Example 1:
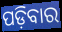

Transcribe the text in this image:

ପଡ଼ିବାର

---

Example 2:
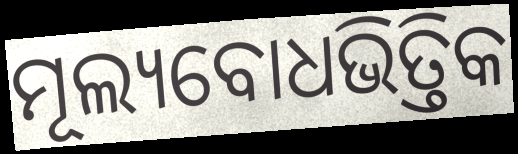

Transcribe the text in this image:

ମୂଲ୍ୟବୋଧଭିତ୍ତିକ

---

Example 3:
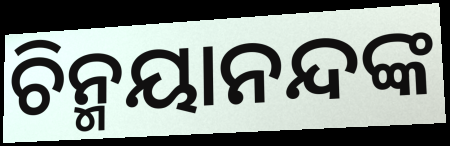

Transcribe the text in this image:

ଚିନ୍ମୟାନନ୍ଦଙ୍କ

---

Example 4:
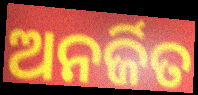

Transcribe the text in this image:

ଅନର୍ଜିତ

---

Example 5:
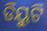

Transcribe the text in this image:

ଡିୟୁଟି